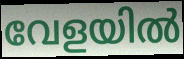
വേളയിൽ